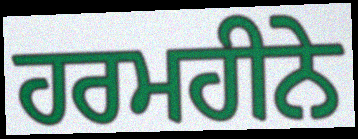
ਹਰਮਹੀਨੇ